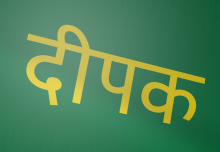
दीपक